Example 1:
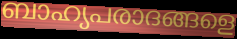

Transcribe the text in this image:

ബാഹ്യപരാദങ്ങളെ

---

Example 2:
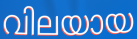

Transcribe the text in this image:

വിലയായ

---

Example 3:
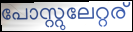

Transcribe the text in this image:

പോസ്റ്റുലേറ്റര്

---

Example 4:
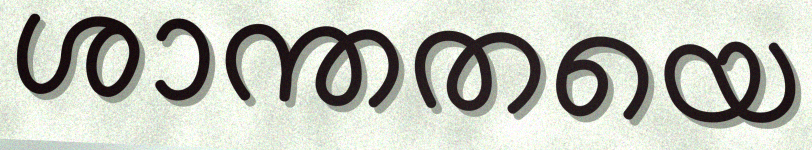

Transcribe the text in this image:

ശാന്തതയെ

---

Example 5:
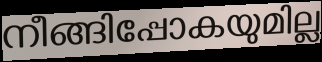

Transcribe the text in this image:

നീങ്ങിപ്പോകയുമില്ല